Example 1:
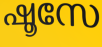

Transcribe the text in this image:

ഷൂസേ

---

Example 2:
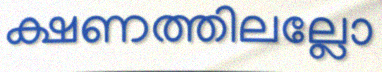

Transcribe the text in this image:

ക്ഷണത്തിലല്ലോ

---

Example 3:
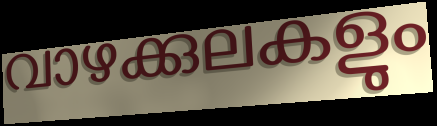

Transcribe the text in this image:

വാഴക്കുലകളും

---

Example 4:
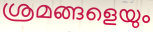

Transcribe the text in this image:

ശ്രമങ്ങളെയും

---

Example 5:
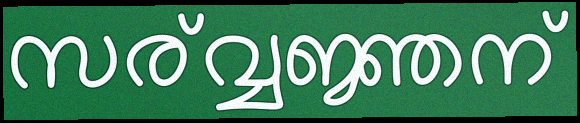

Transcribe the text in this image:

സര്വ്വജ്ഞന്